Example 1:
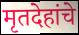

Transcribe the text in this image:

मृतदेहांचे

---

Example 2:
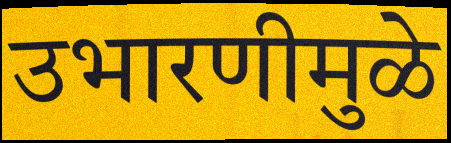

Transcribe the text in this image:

उभारणीमुळे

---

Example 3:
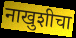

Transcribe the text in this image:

नाखुशीचा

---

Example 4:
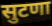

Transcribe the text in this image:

सुटणा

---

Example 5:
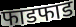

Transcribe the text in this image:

फाडफाड